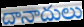
దానాదులు